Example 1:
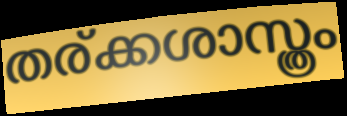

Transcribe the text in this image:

തര്ക്കശാസ്ത്രം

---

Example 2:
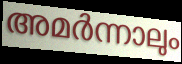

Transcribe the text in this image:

അമർന്നാലും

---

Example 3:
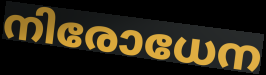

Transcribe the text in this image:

നിരോധേന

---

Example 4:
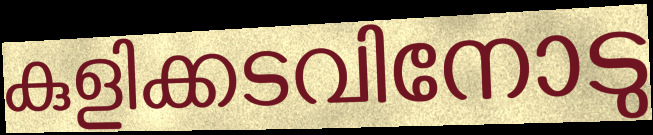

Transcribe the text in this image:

കുളിക്കടവിനോടു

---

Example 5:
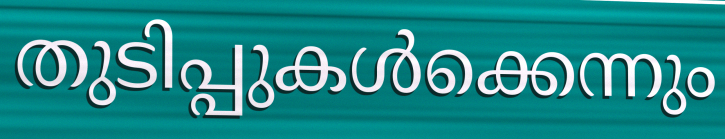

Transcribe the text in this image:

തുടിപ്പുകൾക്കെന്നും